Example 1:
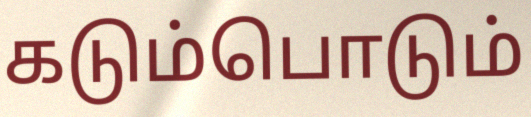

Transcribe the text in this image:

கடும்பொடும்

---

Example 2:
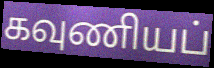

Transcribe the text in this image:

கவுணியப்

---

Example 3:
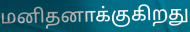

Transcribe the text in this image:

மனிதனாக்குகிறது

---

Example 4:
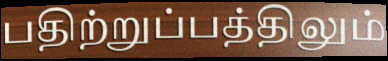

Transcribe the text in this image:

பதிற்றுப்பத்திலும்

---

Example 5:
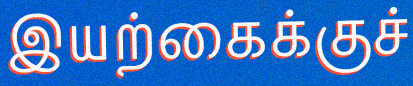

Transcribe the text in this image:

இயற்கைக்குச்